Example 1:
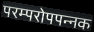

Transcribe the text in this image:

परम्परोपपन्नक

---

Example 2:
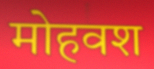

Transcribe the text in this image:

मोहवश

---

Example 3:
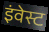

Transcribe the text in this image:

इंवेस्ट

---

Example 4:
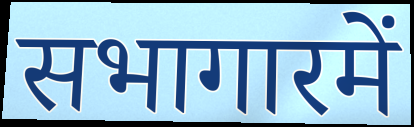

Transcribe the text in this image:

सभागारमें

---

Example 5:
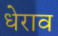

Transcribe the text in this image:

धेराव